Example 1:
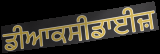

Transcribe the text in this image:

ਡੀਆਕਸੀਡਾਈਜ਼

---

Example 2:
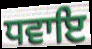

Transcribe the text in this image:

ਧਵਾਇ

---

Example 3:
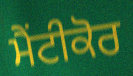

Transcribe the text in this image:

ਮੈਂਟੀਕੋਰ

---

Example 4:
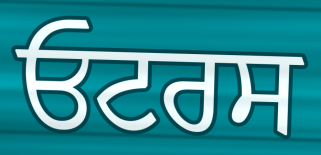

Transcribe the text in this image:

ਓਟਰਸ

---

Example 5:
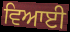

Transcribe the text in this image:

ਵਿਆਈ